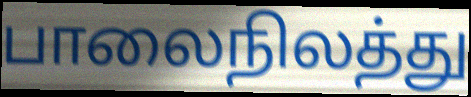
பாலைநிலத்து